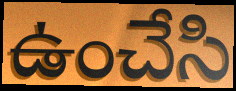
ఉంచేసి